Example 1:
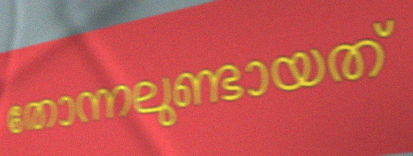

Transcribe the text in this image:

തോന്നലുണ്ടായത്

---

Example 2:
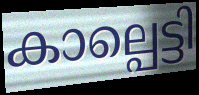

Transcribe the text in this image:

കാല്പെട്ടി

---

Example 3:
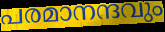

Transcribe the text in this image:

പരമാനന്ദവും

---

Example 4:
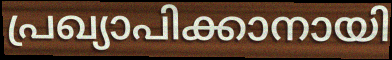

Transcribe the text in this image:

പ്രഖ്യാപിക്കാനായി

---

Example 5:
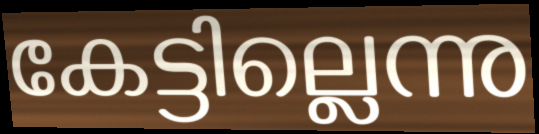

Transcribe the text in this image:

കേട്ടില്ലെന്നു